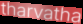
tharvatha